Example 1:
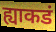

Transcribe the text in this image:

ह्याकडं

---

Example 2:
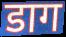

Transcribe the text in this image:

डाग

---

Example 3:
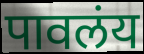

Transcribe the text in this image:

पावलंय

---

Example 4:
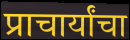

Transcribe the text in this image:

प्राचार्यांचा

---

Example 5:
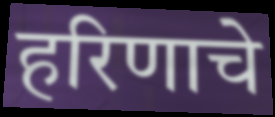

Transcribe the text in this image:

हरिणाचे